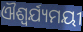
ଐଶ୍ୱର୍ଯ୍ୟମୟୀ